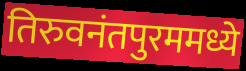
तिरुवनंतपुरममध्ये